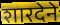
शारदेने